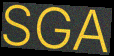
SGA